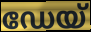
ഡേയ്